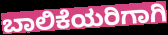
ಬಾಲಿಕೆಯರಿಗಾಗಿ